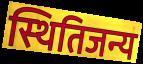
स्थितिजन्य